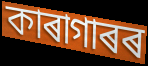
কাৰাগাৰৰ